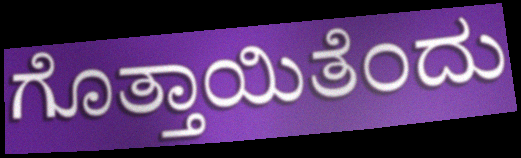
ಗೊತ್ತಾಯಿತೆಂದು